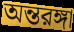
অন্তরঙ্গা